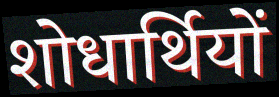
शोधार्थियों